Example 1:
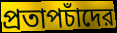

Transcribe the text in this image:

প্রতাপচাঁদের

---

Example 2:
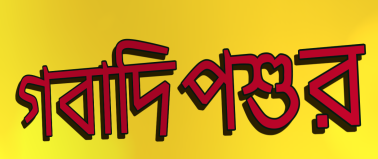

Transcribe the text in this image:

গবাদিপশুর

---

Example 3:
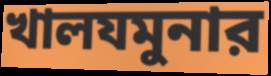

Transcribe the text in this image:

খালযমুনার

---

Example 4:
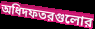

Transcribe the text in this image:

অধিদফতরগুলোর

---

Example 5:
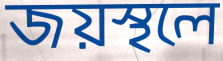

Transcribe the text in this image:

জয়স্থলে